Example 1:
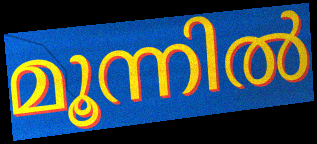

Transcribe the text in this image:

മൂന്നിൽ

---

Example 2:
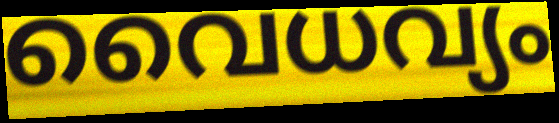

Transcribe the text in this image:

വൈധവ്യം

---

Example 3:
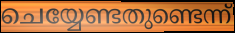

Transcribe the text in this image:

ചെയ്യേണ്ടതുണ്ടെന്ന്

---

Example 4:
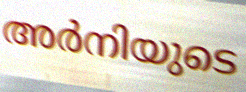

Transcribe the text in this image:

അർനിയുടെ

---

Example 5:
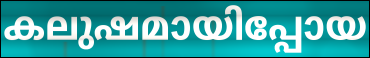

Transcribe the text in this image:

കലുഷമായിപ്പോയ